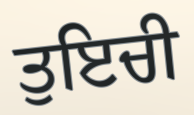
ਤੁਇਚੀ